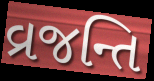
વ્રજન્તિ